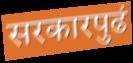
सरकारपुढं